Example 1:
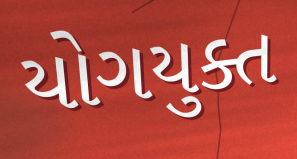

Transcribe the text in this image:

યોગયુક્ત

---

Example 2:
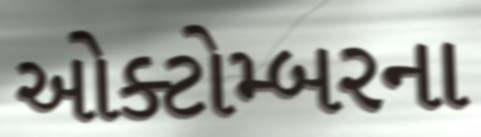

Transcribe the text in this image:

ઓક્ટોમ્બરના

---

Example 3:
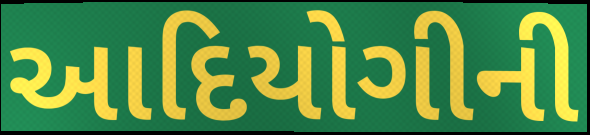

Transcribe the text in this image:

આદિયોગીની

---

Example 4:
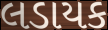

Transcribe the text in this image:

લડાયક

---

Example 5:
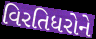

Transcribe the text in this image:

વિરતિધરોને